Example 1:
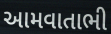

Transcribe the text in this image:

આમવાતાભી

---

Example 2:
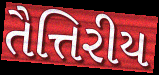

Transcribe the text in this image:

તૈત્તિરીય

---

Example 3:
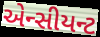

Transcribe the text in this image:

એન્સીયન્ટ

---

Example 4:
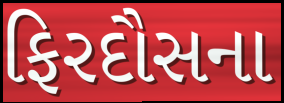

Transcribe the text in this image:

ફિરદૌસના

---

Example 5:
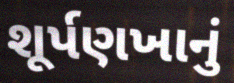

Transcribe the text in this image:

શૂર્પણખાનું